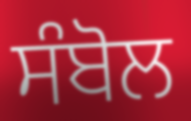
ਸੰਬੋਲ